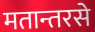
मतान्तरसे